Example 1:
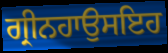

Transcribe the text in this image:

ਗ੍ਰੀਨਹਾਉਸਇਹ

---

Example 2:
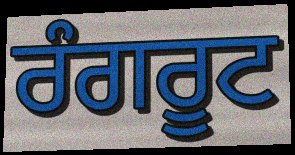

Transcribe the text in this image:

ਰੰਗਰੂਟ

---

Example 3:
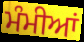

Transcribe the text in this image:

ਮੰਮੀਆਂ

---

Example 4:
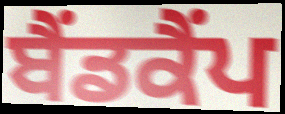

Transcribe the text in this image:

ਬੈਂਡਕੈਂਪ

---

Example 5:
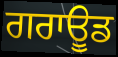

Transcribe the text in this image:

ਗਰਾਊਡ